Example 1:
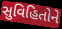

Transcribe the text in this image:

સુવિહિતોને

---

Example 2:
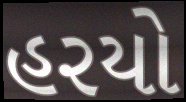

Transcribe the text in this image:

હરયો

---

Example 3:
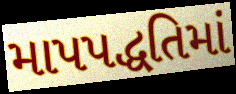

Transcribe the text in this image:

માપપદ્ધતિમાં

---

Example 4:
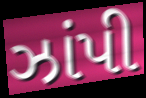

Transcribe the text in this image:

ઝાંપી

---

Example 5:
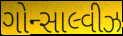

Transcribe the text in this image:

ગોન્સાલ્વીઝ